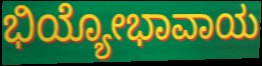
ಭಿಯ್ಯೋಭಾವಾಯ